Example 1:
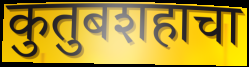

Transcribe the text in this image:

कुतुबशहाचा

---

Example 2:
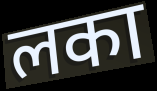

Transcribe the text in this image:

लका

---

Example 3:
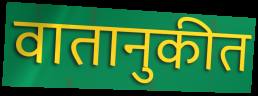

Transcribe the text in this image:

वातानुकीत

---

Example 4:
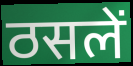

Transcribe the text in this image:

ठसलें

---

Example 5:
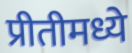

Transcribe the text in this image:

प्रीतीमध्ये